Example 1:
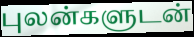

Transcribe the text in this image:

புலன்களுடன்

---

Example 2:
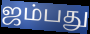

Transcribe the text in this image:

ஜம்பது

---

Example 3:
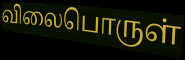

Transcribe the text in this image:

விலைபொருள்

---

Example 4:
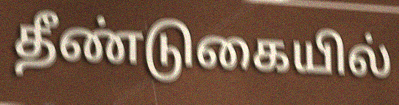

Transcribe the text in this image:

தீண்டுகையில்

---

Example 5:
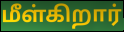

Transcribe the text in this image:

மீள்கிறார்